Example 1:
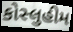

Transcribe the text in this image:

કોસ્લુહીમ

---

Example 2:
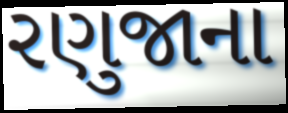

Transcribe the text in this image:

રણુજાના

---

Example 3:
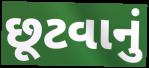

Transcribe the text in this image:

છૂટવાનું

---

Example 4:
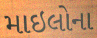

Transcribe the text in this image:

માઇલોના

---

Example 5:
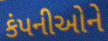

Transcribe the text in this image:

કંપનીઓને